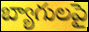
బ్యాగులపై